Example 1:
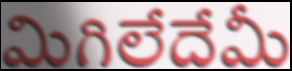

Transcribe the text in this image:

మిగిలేదేమీ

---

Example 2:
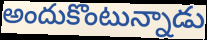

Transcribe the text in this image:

అందుకొంటున్నాడు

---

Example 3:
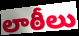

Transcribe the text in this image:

లాఠీలు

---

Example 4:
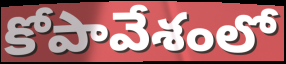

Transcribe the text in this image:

కోపావేశంలో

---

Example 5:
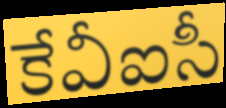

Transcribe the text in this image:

కేవీఐసీ